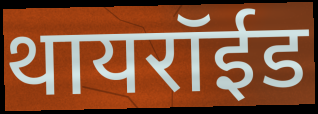
थायरॉईड